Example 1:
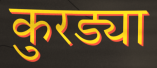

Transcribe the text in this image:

कुरड्या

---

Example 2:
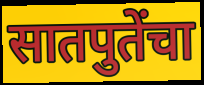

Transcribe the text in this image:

सातपुतेंचा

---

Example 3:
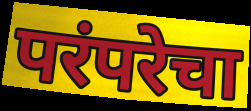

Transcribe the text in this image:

परंपरेचा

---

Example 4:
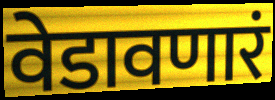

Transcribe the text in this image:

वेडावणारं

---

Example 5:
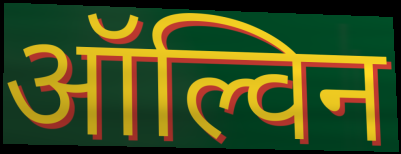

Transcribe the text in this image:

ऑल्विन